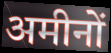
अमीनों